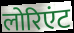
लोरिएंट